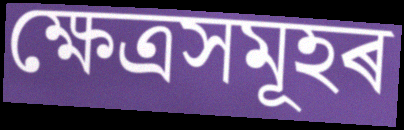
ক্ষেত্ৰসমূহৰ